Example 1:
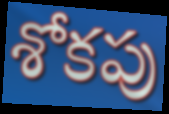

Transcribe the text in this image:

శోకపు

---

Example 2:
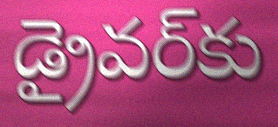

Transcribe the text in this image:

డ్రైవర్‌కు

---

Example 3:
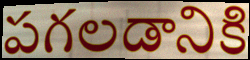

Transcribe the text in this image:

పగలడానికి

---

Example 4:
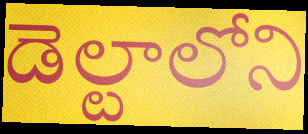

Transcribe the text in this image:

డెల్టాలోని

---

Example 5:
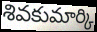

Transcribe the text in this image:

శివకుమార్కి